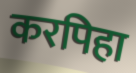
करपिहा